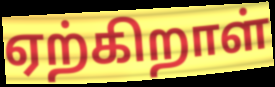
ஏற்கிறாள்